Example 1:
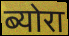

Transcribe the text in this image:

ब्योरा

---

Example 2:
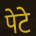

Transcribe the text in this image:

पेटे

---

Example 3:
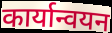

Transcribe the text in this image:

कार्यान्वयन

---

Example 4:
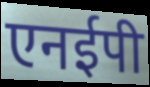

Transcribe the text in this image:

एनईपी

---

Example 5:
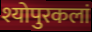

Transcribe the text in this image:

श्योपुरकलां